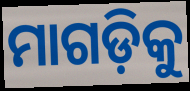
ମାଗଡ଼ିକୁ